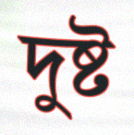
দুষ্ট